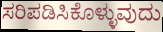
ಸರಿಪಡಿಸಿಕೊಳ್ಳುವುದು